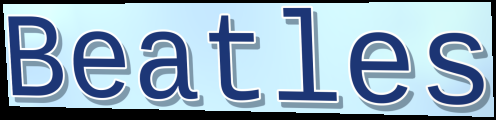
Beatles